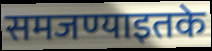
समजण्याइतके